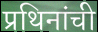
प्रथिनांची